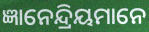
ଜ୍ଞାନେନ୍ଦ୍ରିୟମାନେ